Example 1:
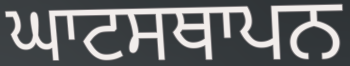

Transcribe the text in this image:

ਘਾਟਸਥਾਪਨ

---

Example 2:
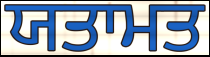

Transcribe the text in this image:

ਯਤਾਮਤ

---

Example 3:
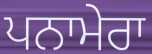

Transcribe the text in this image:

ਪਨਾਮੇਰਾ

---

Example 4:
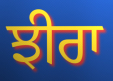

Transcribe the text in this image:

ਝੀਰਾ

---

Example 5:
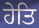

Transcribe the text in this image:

ਹੇਤਿ